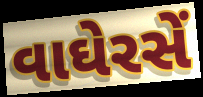
વાઘેરસેં